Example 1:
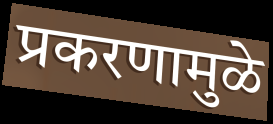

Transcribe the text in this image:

प्रकरणामुळे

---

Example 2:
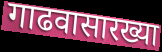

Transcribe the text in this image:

गाढवासारख्या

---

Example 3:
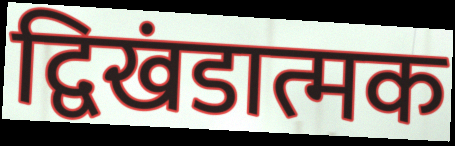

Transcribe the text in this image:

द्विखंडात्मक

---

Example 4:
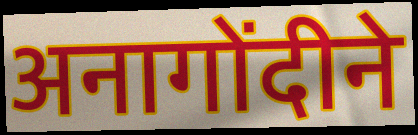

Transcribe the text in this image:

अनागोंदीने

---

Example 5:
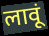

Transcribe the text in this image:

लावूं